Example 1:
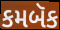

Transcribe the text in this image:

કમબૅક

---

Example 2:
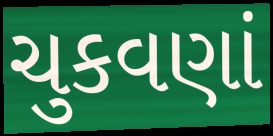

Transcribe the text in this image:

ચુકવણાં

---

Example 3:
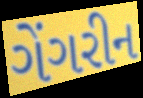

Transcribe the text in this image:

ગેંગરીન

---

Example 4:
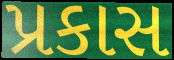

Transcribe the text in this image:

પ્રકાસ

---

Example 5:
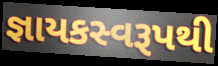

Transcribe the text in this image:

જ્ઞાયકસ્વરૂપથી